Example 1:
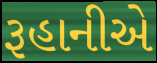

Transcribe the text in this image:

રૂહાનીએ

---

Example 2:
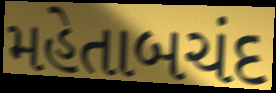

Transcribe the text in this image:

મહેતાબચંદ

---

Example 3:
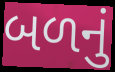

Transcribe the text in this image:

બળનું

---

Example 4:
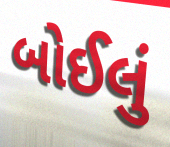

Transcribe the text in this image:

બોઈલું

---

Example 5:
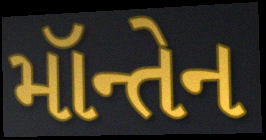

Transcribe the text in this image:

મૉન્તેન